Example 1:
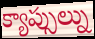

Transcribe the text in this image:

క్యాప్సుల్ను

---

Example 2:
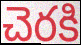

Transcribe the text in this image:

చెరకి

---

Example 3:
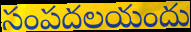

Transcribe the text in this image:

సంపదలయందు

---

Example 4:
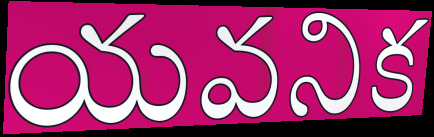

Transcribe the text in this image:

యవనిక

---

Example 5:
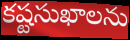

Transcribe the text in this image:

కష్టసుఖాలను